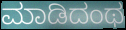
ಮಾಡಿದಂಥ